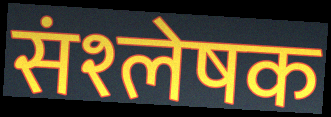
संश्लेषक